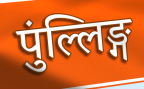
पुंल्लिङ्ग